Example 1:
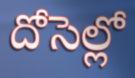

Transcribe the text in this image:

దోసెల్లో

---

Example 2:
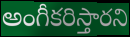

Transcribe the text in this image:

అంగీకరిస్తారని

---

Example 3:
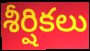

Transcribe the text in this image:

శీర్షికలు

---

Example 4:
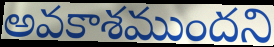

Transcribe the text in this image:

అవకాశముందని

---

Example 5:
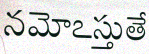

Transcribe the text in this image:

నమోఽస్తుతే